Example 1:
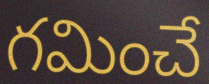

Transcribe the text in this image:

గమించే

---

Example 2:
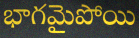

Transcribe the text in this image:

భాగమైపోయి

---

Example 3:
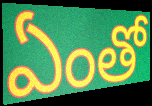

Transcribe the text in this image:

ఏంతో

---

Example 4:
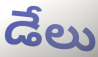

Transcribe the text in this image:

డేలు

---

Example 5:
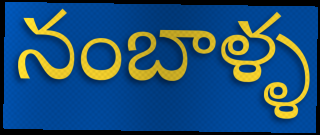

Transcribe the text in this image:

నంబాళ్ళ